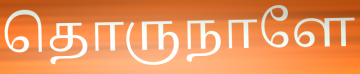
தொருநாளே